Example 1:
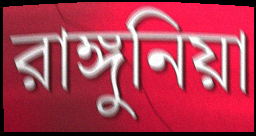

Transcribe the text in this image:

রাঙ্গুনিয়া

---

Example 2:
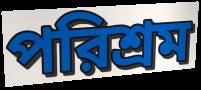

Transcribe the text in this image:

পরিশ্রম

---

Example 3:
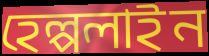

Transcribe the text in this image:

হেল্পলাইন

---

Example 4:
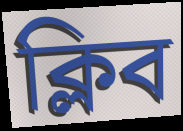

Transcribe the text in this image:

ক্লিব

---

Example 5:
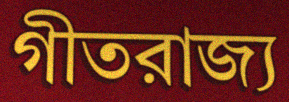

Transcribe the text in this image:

গীতরাজ্য